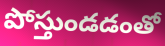
పోస్తుండడంతో